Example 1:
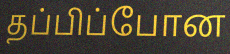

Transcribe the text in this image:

தப்பிப்போன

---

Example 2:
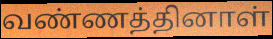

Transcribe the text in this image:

வண்ணத்தினாள்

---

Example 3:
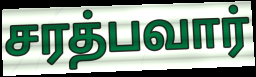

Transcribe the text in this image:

சரத்பவார்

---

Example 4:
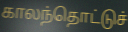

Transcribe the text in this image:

காலந்தொட்டுச்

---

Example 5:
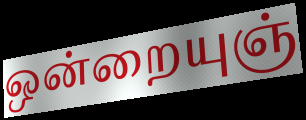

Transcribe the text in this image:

ஒன்றையுஞ்